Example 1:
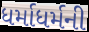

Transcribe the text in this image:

ધર્માધર્મની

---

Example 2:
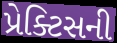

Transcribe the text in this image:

પ્રેક્ટિસની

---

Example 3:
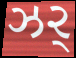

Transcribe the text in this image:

ઝર્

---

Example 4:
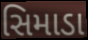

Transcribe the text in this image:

સિમાડા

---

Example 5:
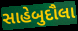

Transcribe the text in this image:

સાહેબુદૌલા